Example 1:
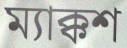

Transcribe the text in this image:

ম্যাক্কশ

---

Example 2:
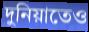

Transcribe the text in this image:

দুনিয়াতেও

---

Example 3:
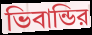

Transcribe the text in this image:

ভিবান্ডির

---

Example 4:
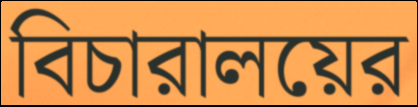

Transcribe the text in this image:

বিচারালয়ের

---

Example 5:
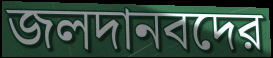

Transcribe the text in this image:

জলদানবদের